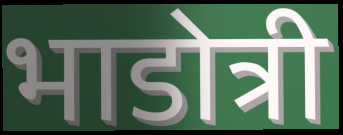
भाडोत्री